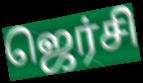
ஜெர்சி